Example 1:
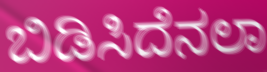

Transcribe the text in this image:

ಬಿಡಿಸಿದೆನಲಾ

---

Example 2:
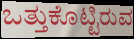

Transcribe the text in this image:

ಒತ್ತುಕೊಟ್ಟಿರುವ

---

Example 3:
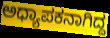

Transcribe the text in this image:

ಅಧ್ಯಾಪಕನಾಗಿದ್ದ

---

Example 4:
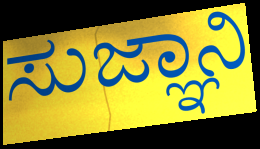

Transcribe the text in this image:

ಸುಜ್ಞಾನಿ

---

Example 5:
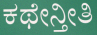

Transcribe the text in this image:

ಕಥೇನ್ತೀತಿ